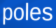
poles